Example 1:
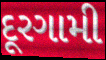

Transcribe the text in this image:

દૂરગામી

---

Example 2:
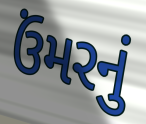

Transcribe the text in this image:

ઉંમરનું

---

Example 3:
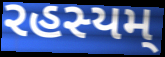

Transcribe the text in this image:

રહસ્યમ્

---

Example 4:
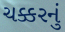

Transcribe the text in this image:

ચક્કરનું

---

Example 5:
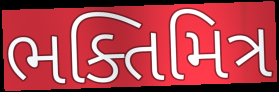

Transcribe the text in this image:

ભક્તિમિત્ર